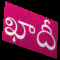
ఖాదీ